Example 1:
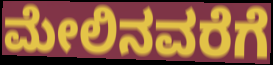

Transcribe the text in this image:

ಮೇಲಿನವರೆಗೆ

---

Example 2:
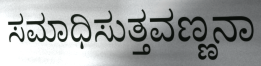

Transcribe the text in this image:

ಸಮಾಧಿಸುತ್ತವಣ್ಣನಾ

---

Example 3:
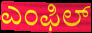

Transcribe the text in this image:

ಎಂಫಿಲ್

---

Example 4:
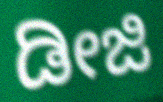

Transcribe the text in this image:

ಡೀಜಿ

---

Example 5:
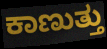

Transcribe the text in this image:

ಕಾಣುತ್ತು